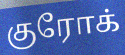
குரோக்